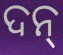
ଦନ୍